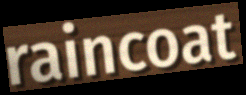
raincoat